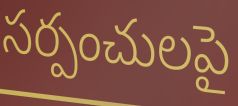
సర్పంచులపై